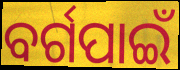
ବର୍ଗପାଇଁ